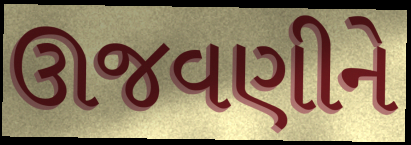
ઊજવણીને